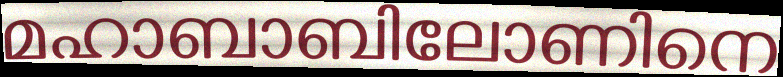
മഹാബാബിലോണിനെ